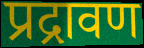
प्रद्रावण